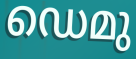
ഡെമു